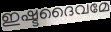
ഇഷ്ടദൈവമേ